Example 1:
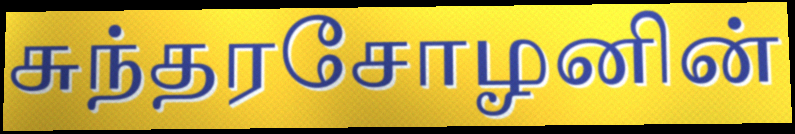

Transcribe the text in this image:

சுந்தரசோழனின்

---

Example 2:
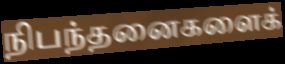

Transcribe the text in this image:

நிபந்தனைகளைக்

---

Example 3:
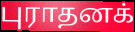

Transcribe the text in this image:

புராதனக்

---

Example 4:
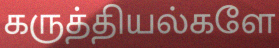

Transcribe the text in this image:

கருத்தியல்களே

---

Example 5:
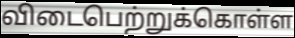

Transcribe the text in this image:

விடைபெற்றுக்கொள்ள